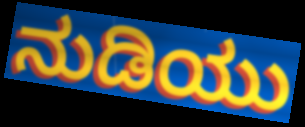
ನುಡಿಯು